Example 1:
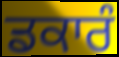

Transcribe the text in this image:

ਡਕਾਰੰ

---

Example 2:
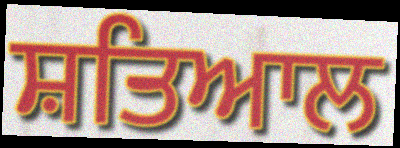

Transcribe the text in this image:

ਸ਼ਤਿਆਲ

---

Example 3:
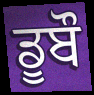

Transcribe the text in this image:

ਡੂਬੌ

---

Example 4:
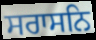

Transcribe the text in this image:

ਸਰਾਸਨਿ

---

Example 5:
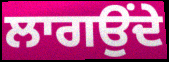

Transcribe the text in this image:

ਲਾਗਉਂਦੇ